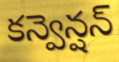
కన్వెన్షన్